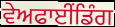
ਵੇਅਫਾਈਂਡਿੰਗ